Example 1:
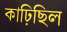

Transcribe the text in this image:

কাঢ়িছিল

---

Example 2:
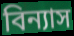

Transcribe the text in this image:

বিন্যাস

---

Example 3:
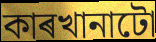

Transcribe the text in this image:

কাৰখানাটো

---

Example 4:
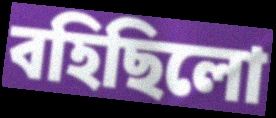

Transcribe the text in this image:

বহিছিলো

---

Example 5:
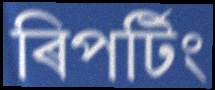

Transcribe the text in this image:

ৰিপৰ্টিং